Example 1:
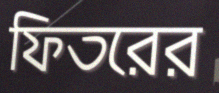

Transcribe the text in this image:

ফিতরের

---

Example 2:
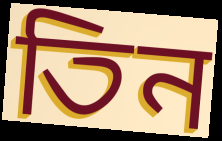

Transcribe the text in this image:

তিন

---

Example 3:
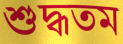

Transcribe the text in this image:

শুদ্ধতম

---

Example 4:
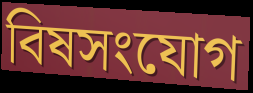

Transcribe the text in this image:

বিষসংযোগ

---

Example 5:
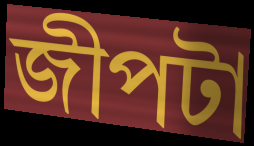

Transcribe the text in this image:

জীপটা